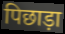
पिछाड़ा